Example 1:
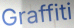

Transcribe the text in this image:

Graffiti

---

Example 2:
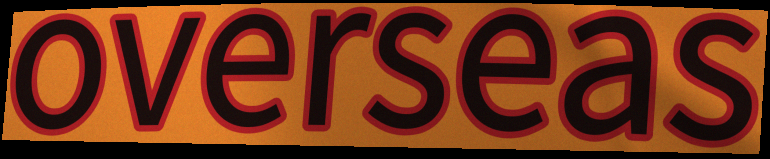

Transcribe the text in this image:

overseas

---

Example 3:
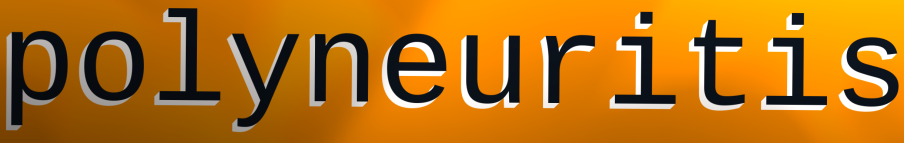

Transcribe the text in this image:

polyneuritis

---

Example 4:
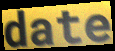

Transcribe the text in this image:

date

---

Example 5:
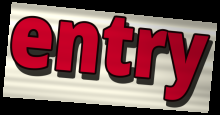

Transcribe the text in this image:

entry